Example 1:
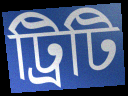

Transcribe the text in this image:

ট্রিটি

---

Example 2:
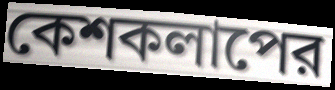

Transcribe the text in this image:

কেশকলাপের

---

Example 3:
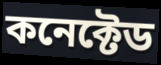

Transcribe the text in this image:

কনেক্টেড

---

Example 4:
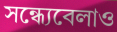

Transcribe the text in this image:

সন্ধ্যেবেলাও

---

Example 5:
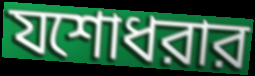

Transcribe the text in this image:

যশোধরার